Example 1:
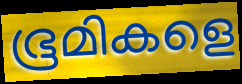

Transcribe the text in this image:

ഭൂമികളെ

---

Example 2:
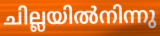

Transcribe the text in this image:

ചില്ലയിൽനിന്നു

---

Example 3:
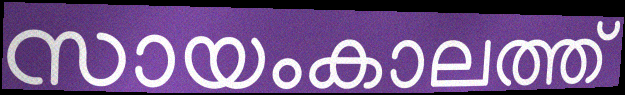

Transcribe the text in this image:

സായംകാലത്ത്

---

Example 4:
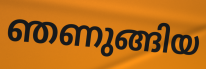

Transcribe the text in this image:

ഞണുങ്ങിയ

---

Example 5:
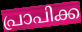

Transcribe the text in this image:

പ്രാപിക്ക